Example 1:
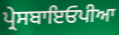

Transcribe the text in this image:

ਪ੍ਰੇਸਬਾਇਓਪੀਆ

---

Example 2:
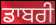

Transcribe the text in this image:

ਡਾਬਰੀ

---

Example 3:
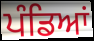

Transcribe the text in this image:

ਪੰਡਿਆਂ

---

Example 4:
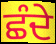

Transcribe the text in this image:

ਛੰਦੇ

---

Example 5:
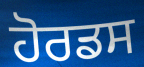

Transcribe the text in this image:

ਹੋਰਡਸ